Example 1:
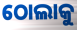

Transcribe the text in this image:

ଠୋଲାକୁ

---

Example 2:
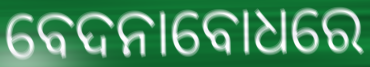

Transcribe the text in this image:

ବେଦନାବୋଧରେ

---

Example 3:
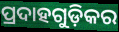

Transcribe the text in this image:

ପ୍ରଦାହଗୁଡ଼ିକର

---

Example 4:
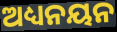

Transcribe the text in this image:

ଅଧ୍ୟନୟନ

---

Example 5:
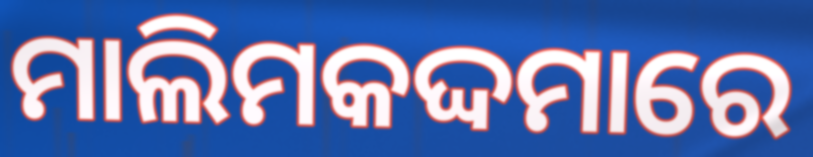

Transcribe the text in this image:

ମାଲିମକଦ୍ଦମାରେ